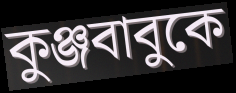
কুঞ্জবাবুকে